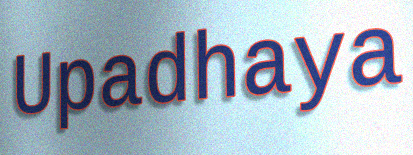
Upadhaya